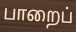
பாறைப்